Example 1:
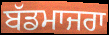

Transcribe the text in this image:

ਬੱਡਮਾਜਰਾ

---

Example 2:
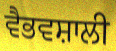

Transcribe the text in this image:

ਵੈਭਵਸ਼ਾਲੀ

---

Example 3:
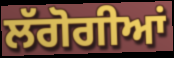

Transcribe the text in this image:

ਲੱਗੋਗੀਆਂ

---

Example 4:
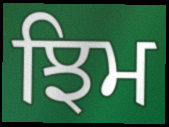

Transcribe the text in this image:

ਝਿਮ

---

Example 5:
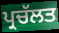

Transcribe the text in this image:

ਪ੍ਰਚੱਲਤ